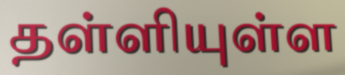
தள்ளியுள்ள